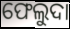
ଫେଲୁଦା